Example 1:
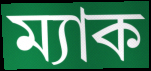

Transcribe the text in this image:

ম্যাক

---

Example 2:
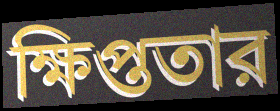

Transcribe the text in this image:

ক্ষিপ্ততার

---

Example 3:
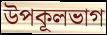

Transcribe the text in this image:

উপকূলভাগ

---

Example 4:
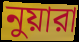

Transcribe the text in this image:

নুয়ারা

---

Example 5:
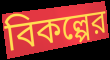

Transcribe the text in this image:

বিকল্পের